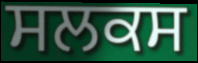
ਸਲਕਸ